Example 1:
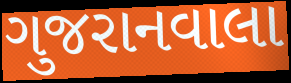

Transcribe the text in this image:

ગુજરાનવાલા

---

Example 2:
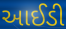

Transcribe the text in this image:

આઈડી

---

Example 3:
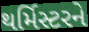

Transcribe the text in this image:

થર્મિસ્ટરને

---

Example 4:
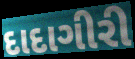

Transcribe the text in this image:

દાદાગીરી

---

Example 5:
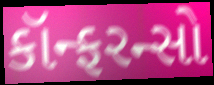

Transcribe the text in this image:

કૉન્ફરન્સો